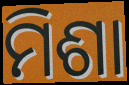
ମିଶା